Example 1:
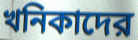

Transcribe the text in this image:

খনিকাদের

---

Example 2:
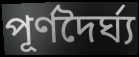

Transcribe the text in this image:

পূর্ণদৈর্ঘ্য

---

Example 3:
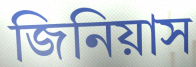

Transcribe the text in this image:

জিনিয়াস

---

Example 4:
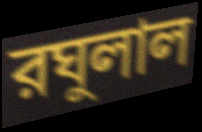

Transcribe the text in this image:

রঘুলাল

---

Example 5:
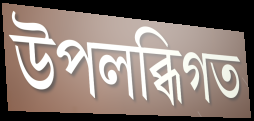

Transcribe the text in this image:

উপলব্ধিগত